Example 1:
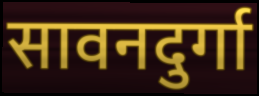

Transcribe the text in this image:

सावनदुर्गा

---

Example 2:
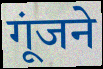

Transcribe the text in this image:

गूंजने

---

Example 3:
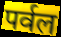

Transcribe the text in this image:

पर्वल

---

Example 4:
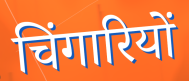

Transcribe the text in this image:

चिंगारियों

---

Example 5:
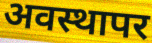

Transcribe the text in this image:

अवस्थापर